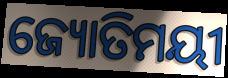
ଜ୍ୟୋତିମୟୀ